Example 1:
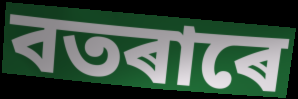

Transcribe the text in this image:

বতৰাৰে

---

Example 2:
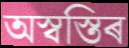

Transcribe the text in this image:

অস্বস্তিৰ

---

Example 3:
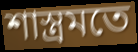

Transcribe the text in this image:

শাস্ত্ৰমতে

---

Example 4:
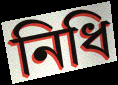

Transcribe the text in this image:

নিধি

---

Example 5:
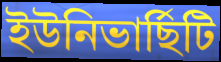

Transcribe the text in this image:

ইউনিভাৰ্ছিটি